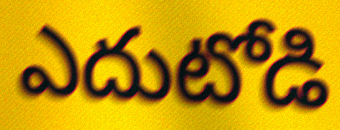
ఎదుటోడి